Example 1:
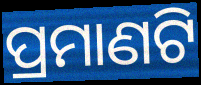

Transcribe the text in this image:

ପ୍ରମାଣଟି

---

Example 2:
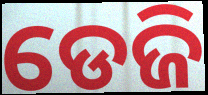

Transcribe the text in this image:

ଡେଜି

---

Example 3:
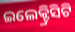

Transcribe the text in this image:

ଇଲେକ୍ଟ୍ରିସିଟି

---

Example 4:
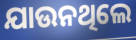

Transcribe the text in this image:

ଯାଉନଥିଲେ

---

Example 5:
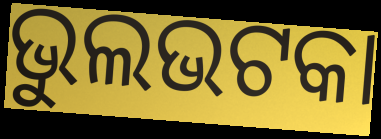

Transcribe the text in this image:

ଭୁଲଭଟକା